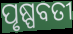
ପୃଷ୍ପବତୀ